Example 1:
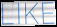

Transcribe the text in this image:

LIKE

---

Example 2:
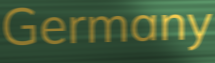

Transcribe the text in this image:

Germany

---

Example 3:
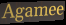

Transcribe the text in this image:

Agamee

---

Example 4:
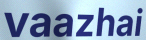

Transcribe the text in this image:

vaazhai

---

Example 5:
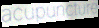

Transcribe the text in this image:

acupuncture